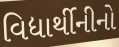
વિદ્યાર્થીનીનો